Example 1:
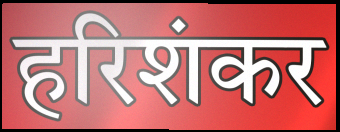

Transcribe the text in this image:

हरिशंकर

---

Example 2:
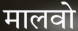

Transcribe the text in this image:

मालवो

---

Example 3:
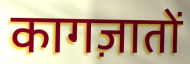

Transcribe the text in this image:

कागज़ातों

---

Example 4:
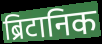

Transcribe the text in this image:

ब्रिटानिक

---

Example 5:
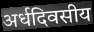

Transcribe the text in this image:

अर्धदिवसीय